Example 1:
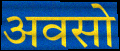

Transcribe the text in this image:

अवसो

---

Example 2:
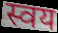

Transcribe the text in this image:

स्वय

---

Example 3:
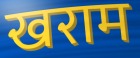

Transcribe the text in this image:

खराम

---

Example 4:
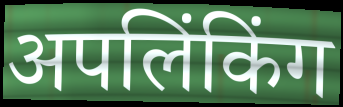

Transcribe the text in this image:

अपलिंकिंग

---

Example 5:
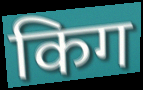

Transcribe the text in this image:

किग